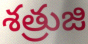
శత్రుజి